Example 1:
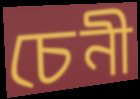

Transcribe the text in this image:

চেনী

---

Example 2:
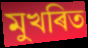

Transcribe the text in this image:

মুখৰিত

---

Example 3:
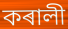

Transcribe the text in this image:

কৰালী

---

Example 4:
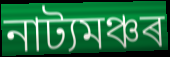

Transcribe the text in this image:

নাট্যমঞ্চৰ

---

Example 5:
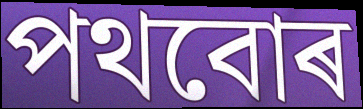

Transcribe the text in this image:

পথবোৰ